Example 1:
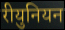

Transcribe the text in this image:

रीयुनियन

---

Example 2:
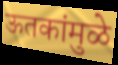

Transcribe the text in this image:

ऊतकांमुळे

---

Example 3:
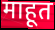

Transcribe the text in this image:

माहूत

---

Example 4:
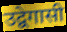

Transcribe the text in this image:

उद्वेगासी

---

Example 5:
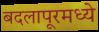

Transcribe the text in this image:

बदलापूरमध्ये